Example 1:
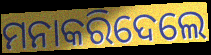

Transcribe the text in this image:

ମନାକରିଦେଲେ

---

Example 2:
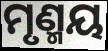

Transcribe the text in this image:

ମୃଣ୍ମୟ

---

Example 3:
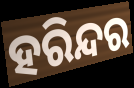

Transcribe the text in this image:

ହରିନ୍ଦର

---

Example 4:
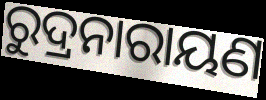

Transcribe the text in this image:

ରୁଦ୍ରନାରାୟଣ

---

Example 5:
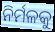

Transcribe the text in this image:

ନିର୍ମଳକୁ